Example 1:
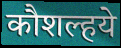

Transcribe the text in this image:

कौशल्हये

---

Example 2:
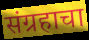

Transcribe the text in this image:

संग्रहाचा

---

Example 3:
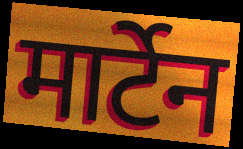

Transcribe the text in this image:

मार्टेन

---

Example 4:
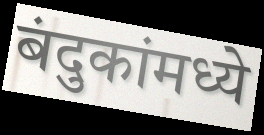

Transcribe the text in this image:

बंदुकांमध्ये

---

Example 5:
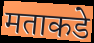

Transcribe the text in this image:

मताकडे